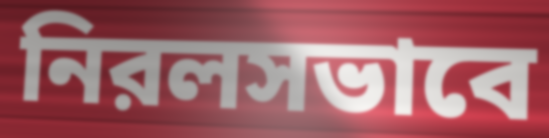
নিরলসভাবে